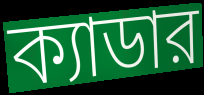
ক্যাডার